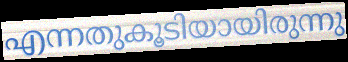
എന്നതുകൂടിയായിരുന്നു